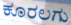
ಕೂರಲಗು